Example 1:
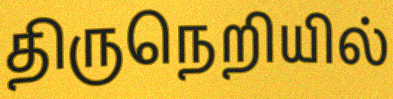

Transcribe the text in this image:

திருநெறியில்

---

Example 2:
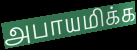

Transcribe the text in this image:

அபாயமிக்க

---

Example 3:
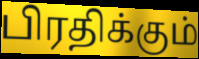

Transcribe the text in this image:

பிரதிக்கும்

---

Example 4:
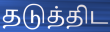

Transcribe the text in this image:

தடுத்திட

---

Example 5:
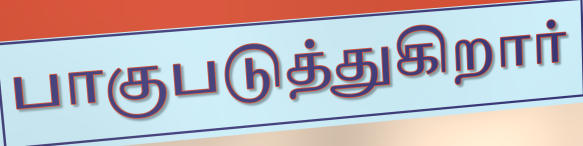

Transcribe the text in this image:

பாகுபடுத்துகிறார்